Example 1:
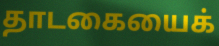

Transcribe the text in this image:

தாடகையைக்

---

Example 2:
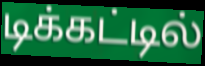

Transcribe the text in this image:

டிக்கட்டில்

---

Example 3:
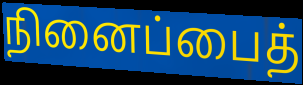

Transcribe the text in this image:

நினைப்பைத்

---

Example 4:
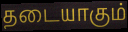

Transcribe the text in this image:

தடையாகும்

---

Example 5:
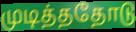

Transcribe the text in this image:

முடித்ததோடு